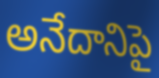
అనేదానిపై